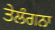
ਤੇਲੰਗਨਾ